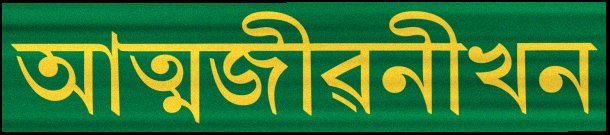
আত্মজীৱনীখন